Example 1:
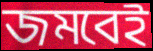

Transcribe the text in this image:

জমবেই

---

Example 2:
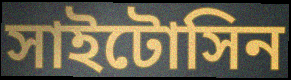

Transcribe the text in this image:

সাইটোসিন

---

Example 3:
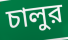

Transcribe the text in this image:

চালুর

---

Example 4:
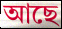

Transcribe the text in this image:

আছে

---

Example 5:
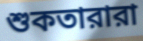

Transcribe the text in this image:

শুকতারারা